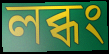
লব্ধং